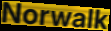
Norwalk